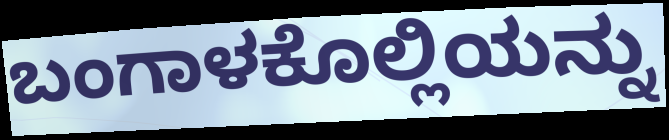
ಬಂಗಾಳಕೊಲ್ಲಿಯನ್ನು